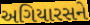
અગિયારસને